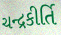
ચન્દ્રકીર્તિ